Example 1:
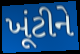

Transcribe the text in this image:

ખૂંટીને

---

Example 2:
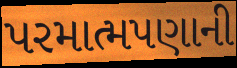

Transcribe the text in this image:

પરમાત્મપણાની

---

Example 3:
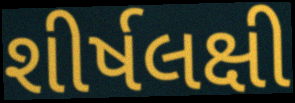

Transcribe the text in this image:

શીર્ષલક્ષી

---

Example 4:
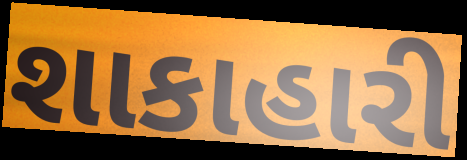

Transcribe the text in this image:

શાકાહારી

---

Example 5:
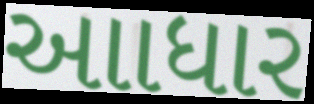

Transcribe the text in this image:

આાધાર